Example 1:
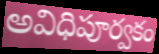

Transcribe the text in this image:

అవిధిపూర్వకం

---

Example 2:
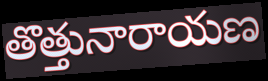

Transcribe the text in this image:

తొత్తునారాయణ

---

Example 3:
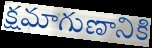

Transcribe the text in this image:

క్షమాగుణానికి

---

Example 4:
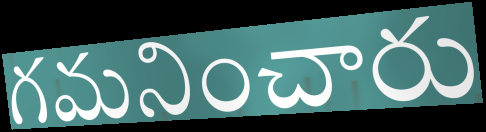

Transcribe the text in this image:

గమనించారు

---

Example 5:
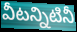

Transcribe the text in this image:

వీటన్నిటినీ